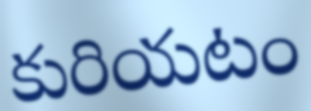
కురియటం